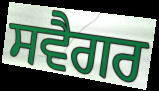
ਸਵੈਗਰ